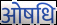
ओषधि